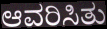
ಆವರಿಸಿತು